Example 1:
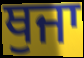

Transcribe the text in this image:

ਥੁਜਾ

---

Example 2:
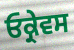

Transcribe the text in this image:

ਓਕ੍ਰੇਵਸ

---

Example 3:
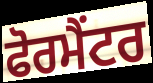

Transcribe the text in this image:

ਫੋਰਮੈਂਟਰ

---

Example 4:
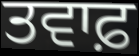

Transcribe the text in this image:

ਤਵਾਫ਼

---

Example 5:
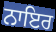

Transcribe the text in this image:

ਨਾਇਰ